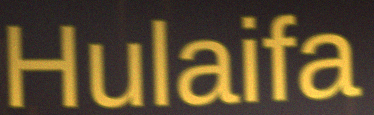
Hulaifa